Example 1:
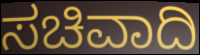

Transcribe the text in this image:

ಸಚಿವಾದಿ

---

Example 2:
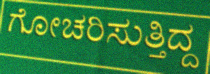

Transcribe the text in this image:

ಗೋಚರಿಸುತ್ತಿದ್ದ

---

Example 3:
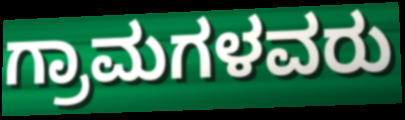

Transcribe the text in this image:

ಗ್ರಾಮಗಳವರು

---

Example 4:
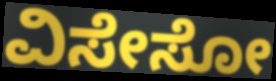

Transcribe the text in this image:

ವಿಸೇಸೋ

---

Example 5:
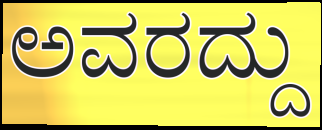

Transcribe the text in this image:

ಅವರದ್ದು